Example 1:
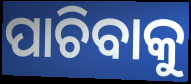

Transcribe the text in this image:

ପାଚିବାକୁ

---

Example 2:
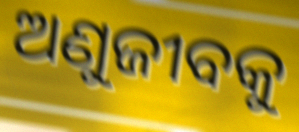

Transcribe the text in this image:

ଅଣୁଜୀବକୁ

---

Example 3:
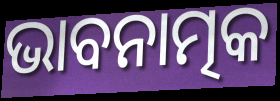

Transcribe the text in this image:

ଭାବନାତ୍ମକ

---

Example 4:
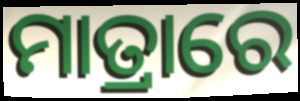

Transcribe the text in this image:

ମାତ୍ରାରେ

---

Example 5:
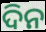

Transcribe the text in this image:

ଦିନ